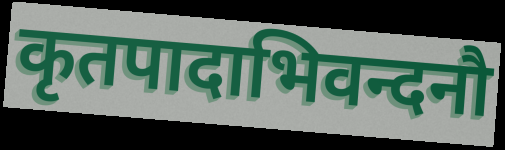
कृतपादाभिवन्दनौ